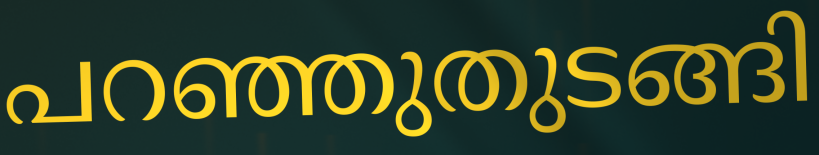
പറഞ്ഞുതുടങ്ങി